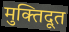
मुक्तिदूत